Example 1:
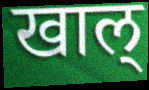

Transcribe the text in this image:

खाल्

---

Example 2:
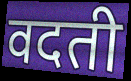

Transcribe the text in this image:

वदती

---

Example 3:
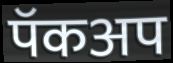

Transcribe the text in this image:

पॅकअप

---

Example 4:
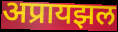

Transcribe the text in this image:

अप्रायझल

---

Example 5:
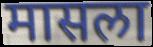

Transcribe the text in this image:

मासला